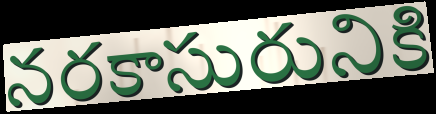
నరకాసురునికి